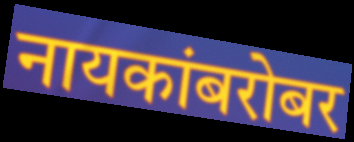
नायकांबरोबर